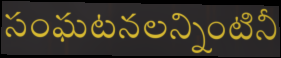
సంఘటనలన్నింటినీ